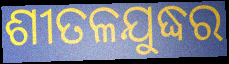
ଶୀତଳଯୁଦ୍ଧର